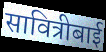
सावित्रीबाई